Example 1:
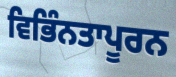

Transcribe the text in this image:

ਵਿਭਿੰਨਤਾਪੂਰਨ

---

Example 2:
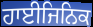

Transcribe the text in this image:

ਹਾਈਜਿਨਿਕ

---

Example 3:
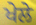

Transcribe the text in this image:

ਖੇਲੇ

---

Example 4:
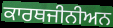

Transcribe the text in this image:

ਕਾਰਥਜੀਨੀਅਨ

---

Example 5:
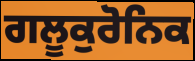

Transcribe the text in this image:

ਗਲੂਕੁਰੋਨਿਕ